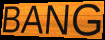
BANG